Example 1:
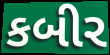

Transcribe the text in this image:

કબીર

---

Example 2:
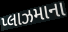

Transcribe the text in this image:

પ્લાઝમાના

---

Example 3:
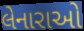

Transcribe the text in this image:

લેનારાઓ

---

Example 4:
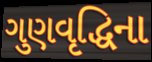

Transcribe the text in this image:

ગુણવૃદ્ધિના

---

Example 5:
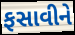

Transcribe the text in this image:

ફસાવીને